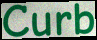
Curb